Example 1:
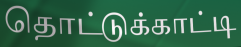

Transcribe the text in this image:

தொட்டுக்காட்டி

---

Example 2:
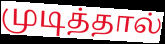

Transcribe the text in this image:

முடித்தால்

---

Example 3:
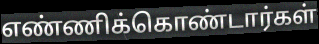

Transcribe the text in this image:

எண்ணிக்கொண்டார்கள்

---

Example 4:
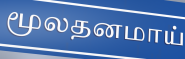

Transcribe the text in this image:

மூலதனமாய்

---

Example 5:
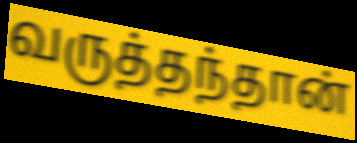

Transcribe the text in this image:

வருத்தந்தான்